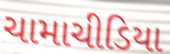
ચામાચીડિયા